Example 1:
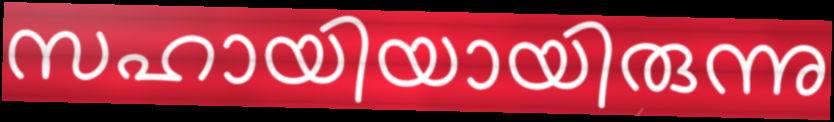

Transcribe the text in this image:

സഹായിയായിരുന്നു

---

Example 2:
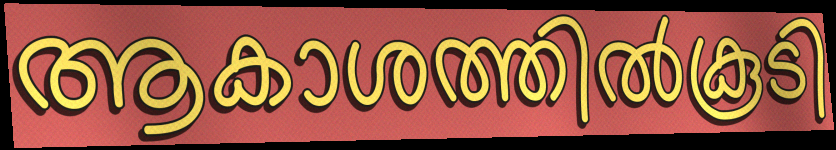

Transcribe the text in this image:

ആകാശത്തിൽകൂടി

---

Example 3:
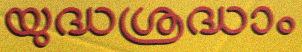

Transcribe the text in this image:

യുദ്ധശ്രദ്ധാം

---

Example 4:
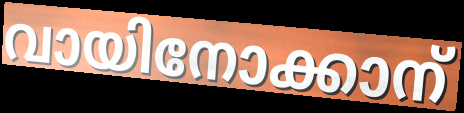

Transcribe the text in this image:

വായിനോക്കാന്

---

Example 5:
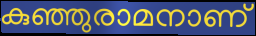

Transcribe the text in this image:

കുഞ്ഞുരാമനാണ്